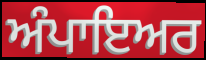
ਅੰਪਾਇਅਰ